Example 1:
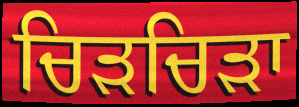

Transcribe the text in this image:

ਚਿੜਚਿੜਾ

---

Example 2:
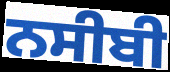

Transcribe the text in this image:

ਨਸੀਬੀ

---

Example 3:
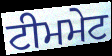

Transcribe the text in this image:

ਟੀਮਮੇਟ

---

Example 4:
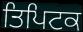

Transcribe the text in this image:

ਤਿਪਿਟਕ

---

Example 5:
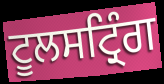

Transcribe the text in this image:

ਟੂਲਸਟ੍ਰਿੰਗ